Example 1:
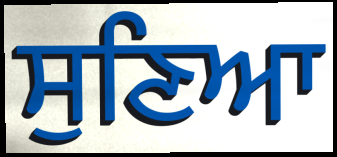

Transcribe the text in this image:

ਸੁਣਿਆ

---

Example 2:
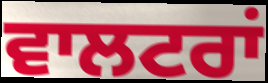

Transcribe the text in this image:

ਵਾਲਟਰਾਂ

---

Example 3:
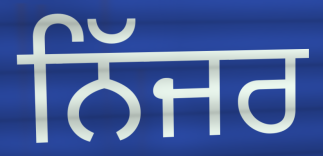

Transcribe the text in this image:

ਨਿੱਜਰ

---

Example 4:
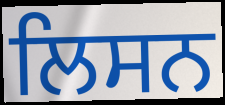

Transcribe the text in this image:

ਲਿਸਨ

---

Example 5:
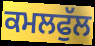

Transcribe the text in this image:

ਕਮਲਫੁੱਲ